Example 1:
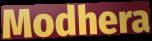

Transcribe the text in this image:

Modhera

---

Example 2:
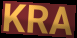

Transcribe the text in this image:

KRA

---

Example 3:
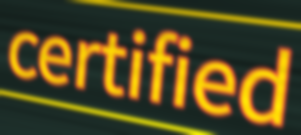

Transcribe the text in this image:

certified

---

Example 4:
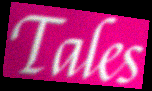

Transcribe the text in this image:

Tales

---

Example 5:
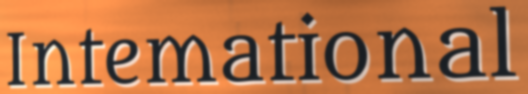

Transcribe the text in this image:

Intemational